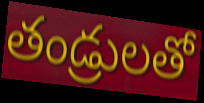
తండ్రులతో